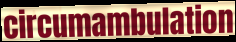
circumambulation